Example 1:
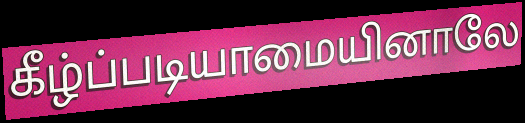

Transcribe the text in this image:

கீழ்ப்படியாமையினாலே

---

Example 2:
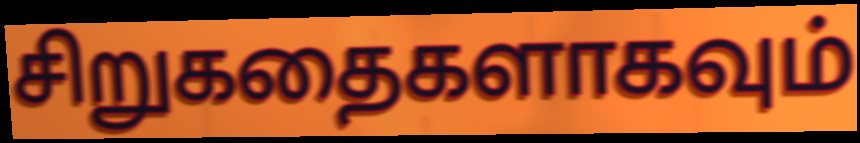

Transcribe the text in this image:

சிறுகதைகளாகவும்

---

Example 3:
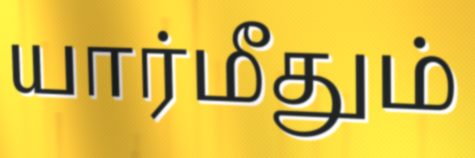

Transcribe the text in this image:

யார்மீதும்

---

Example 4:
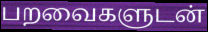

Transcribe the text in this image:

பறவைகளுடன்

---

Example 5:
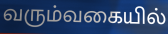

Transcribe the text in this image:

வரும்வகையில்